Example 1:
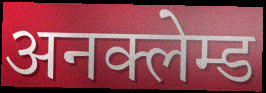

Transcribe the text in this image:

अनक्लेम्ड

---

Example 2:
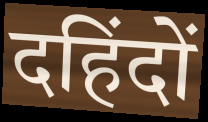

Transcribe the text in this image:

दहिंदों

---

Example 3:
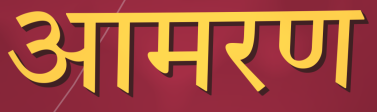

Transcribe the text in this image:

आमरण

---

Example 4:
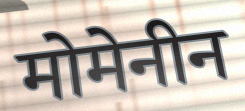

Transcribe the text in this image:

मोमेनीन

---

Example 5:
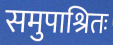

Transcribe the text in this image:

समुपाश्रितः